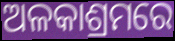
ଅଳକାଶ୍ରମରେ